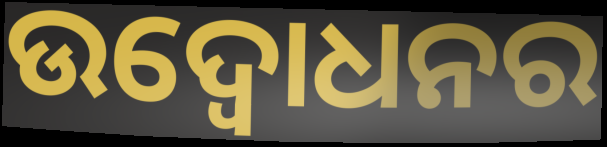
ଉଦ୍ବୋଧନର